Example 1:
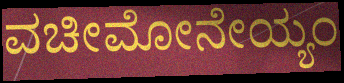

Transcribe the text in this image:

ವಚೀಮೋನೇಯ್ಯಂ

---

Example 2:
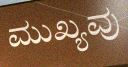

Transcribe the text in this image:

ಮುಖ್ಯವು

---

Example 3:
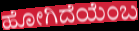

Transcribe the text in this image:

ಹೋಗಿದೆಯೆಂಬ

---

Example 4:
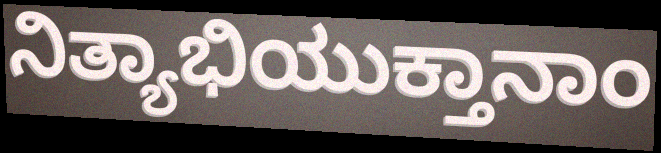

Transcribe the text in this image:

ನಿತ್ಯಾಭಿಯುಕ್ತಾನಾಂ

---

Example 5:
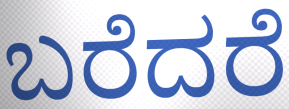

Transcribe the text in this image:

ಬರೆದರೆ